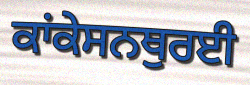
ਕਾਂਕੇਸਨਥੁਰਈ